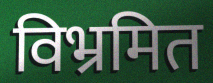
विभ्रमित